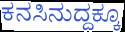
ಕನಸಿನುದ್ದಕ್ಕೂ